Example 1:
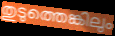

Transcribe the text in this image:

തുടുത്തെങ്കിലും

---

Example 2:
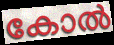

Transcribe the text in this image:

കോൽ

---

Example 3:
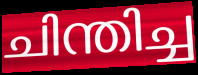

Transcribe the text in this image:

ചിന്തിച്ച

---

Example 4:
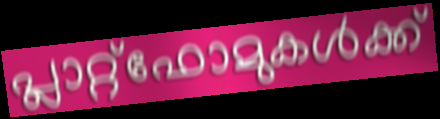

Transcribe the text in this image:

പ്ലാറ്റ്ഫോമുകൾക്ക്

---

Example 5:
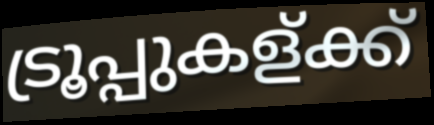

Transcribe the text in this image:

ട്രൂപ്പുകള്ക്ക്